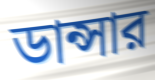
ডান্সার